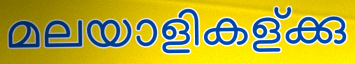
മലയാളികള്ക്കു